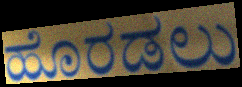
ಹೊರಡಲು